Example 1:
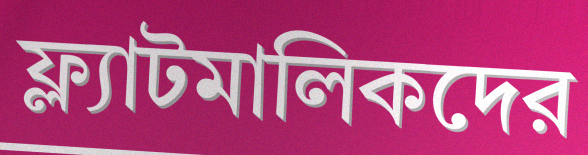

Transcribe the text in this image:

ফ্ল্যাটমালিকদের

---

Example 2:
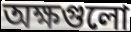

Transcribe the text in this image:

অক্ষগুলো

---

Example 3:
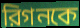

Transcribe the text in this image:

রিগনকে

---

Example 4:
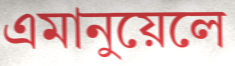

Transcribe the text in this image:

এমানুয়েলে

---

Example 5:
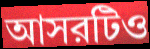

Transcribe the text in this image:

আসরটিও